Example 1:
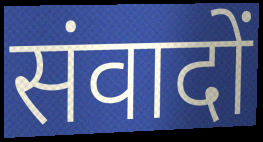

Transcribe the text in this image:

संवादों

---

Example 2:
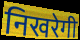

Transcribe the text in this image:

निखरेगी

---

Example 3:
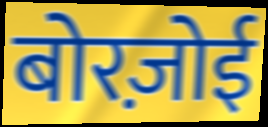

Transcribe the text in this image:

बोरज़ोई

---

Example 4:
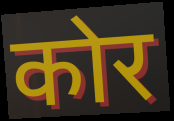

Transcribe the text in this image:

कोर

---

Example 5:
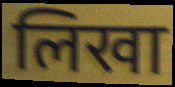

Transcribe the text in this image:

लिखा